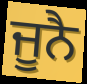
ਜੂਨੈ